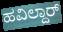
ಹವಿಲ್ದಾರ್